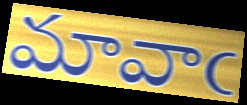
మావాఁ